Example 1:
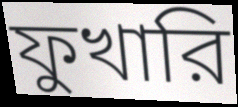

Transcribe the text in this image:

ফুখারি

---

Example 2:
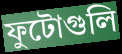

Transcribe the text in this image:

ফুটোগুলি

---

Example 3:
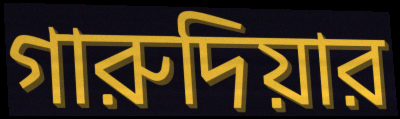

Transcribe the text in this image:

গারুদিয়ার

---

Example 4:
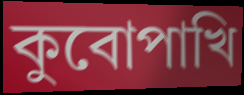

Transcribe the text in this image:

কুবোপাখি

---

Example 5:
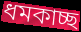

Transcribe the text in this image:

ধমকাচ্ছ